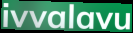
ivvalavu